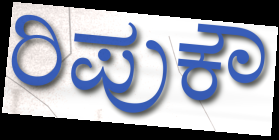
ರಿಪುಕೌ